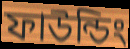
ফাউন্ডিং